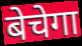
बेचेगा